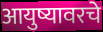
आयुष्यावरचे